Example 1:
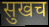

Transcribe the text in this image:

सुखच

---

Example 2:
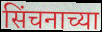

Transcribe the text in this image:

सिंचनाच्या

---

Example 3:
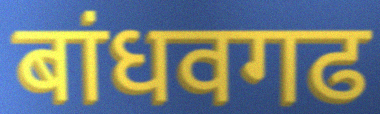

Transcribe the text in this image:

बांधवगढ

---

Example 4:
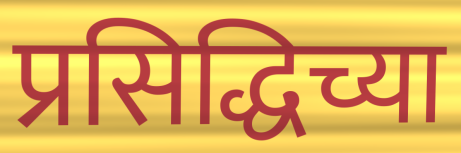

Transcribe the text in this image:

प्रसिद्धिच्या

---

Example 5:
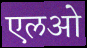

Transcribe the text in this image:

एलओ